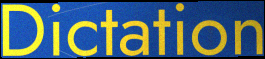
Dictation